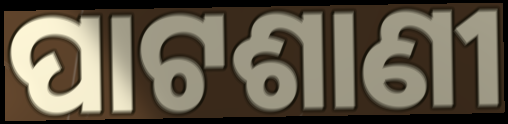
ପାଟଶାଣୀ